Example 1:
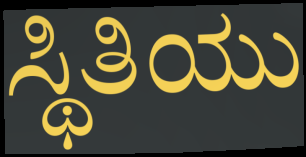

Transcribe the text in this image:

ಸ್ಥಿತಿಯು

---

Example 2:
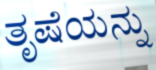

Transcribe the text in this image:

ತೃಷೆಯನ್ನು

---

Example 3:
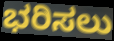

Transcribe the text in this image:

ಭರಿಸಲು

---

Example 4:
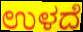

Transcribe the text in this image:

ಉಳದೆ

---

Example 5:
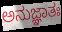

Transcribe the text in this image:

ಅನುಜ್ಞಾತಃ